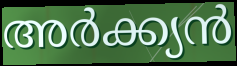
അർക്ക്യൻ